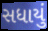
સધાયું